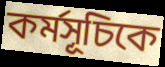
কর্মসূচিকে